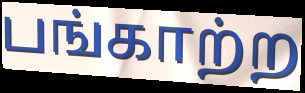
பங்காற்ற